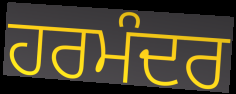
ਹਰਮੰਦਰ